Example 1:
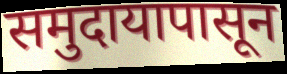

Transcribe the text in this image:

समुदायापासून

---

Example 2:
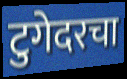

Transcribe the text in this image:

टुगेदरचा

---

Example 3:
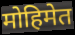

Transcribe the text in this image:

मोहिमेत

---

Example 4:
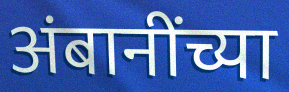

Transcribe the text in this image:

अंबानींच्या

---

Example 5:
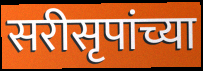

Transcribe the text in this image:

सरीसृपांच्या